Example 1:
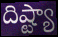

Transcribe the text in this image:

దిష్ట్యా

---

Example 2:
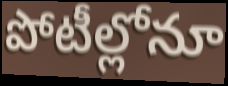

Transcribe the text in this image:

పోటీల్లోనూ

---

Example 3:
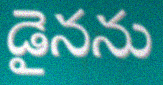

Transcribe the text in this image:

డైనను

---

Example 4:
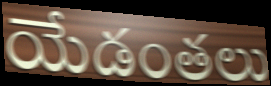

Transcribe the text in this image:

యేడంతలు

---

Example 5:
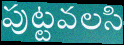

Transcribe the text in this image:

పుట్టవలసి